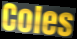
Coles